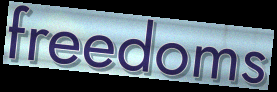
freedoms